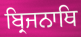
ਬ੍ਰਿਜਨਾਥਿ